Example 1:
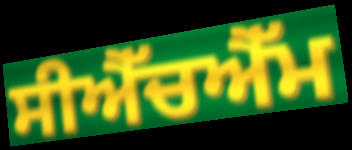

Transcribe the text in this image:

ਸੀਐੱਚਐੱਮ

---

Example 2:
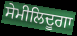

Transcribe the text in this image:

ਸੇਮੀਲਿਦੂਗਾ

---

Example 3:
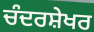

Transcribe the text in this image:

ਚੰਦਰਸ਼ੇਖਰ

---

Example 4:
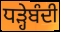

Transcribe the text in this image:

ਧੜ੍ਹੇਬੰਦੀ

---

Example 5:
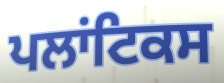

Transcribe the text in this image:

ਪਲਾਂਟਿਕਸ